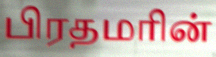
பிரதமரின்